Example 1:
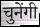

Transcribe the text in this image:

चुनेंगी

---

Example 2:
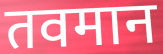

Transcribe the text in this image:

तवमान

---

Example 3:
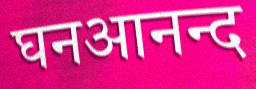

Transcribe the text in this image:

घनआनन्द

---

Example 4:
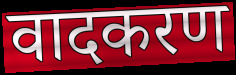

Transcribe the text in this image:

वादकरण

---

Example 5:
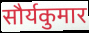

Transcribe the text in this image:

सौर्यकुमार